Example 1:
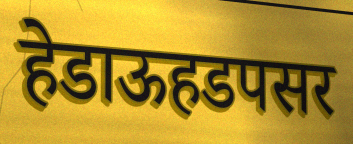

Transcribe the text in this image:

हेडाऊहडपसर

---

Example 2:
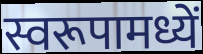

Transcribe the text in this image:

स्वरूपामध्यें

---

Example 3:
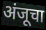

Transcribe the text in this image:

अंजूचा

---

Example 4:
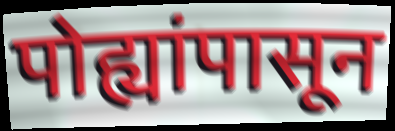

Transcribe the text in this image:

पोह्यांपासून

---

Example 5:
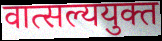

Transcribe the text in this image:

वात्सल्ययुक्त